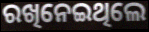
ରଖିନେଇଥିଲେ